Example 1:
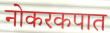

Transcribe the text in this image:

नोकरकपात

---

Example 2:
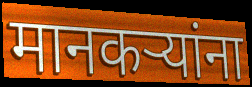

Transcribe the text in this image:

मानकऱ्यांना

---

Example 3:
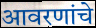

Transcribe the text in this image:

आवरणांचे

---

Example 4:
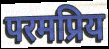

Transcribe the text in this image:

परमप्रिय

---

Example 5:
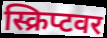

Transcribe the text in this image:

स्क्रिप्टवर